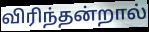
விரிந்தன்றால்